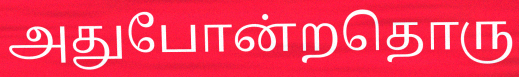
அதுபோன்றதொரு